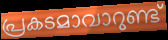
പ്രകടമാവാറുണ്ട്